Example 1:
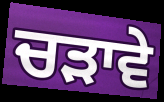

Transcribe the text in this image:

ਚੜਾਵੇ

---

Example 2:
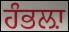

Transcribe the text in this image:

ਹੰਭਲ਼ਾ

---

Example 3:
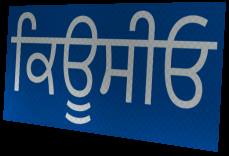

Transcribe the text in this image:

ਕਿਊਸੀਓ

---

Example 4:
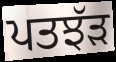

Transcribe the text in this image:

ਪਤਝੱੜ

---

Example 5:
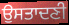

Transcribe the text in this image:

ਉਸਤਾਦਣੀ